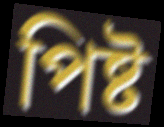
পিষ্ট